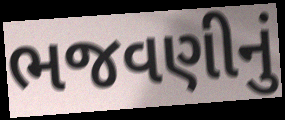
ભજવણીનું